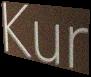
Kur